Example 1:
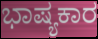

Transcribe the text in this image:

ಭಾಷ್ಯಕಾರ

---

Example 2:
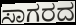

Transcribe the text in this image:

ಸಾಗರದ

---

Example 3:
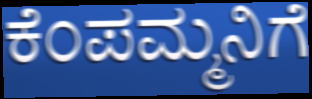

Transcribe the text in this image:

ಕೆಂಪಮ್ಮನಿಗೆ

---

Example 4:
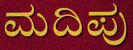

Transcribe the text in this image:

ಮದಿಪು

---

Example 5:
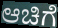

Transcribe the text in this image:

ಆಚಿಗೆ